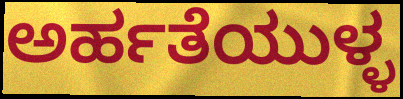
ಅರ್ಹತೆಯುಳ್ಳ